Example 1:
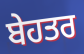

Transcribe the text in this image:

ਬੇਹਤਰ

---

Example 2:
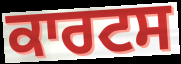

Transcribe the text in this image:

ਕਾਰਟਸ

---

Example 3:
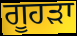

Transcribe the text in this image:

ਗੂਹੜਾ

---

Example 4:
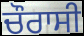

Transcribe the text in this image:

ਚੌਰਾਸੀ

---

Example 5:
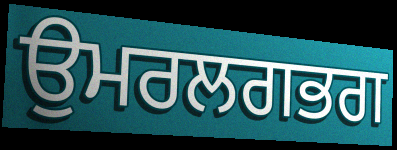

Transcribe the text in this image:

ਉੁਮਰਲਗਭਗ